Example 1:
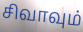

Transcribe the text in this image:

சிவாவும்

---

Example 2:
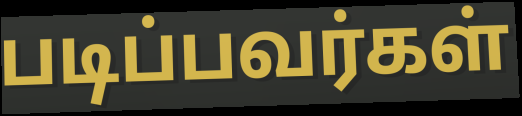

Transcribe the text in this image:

படிப்பவர்கள்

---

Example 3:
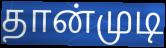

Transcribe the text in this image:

தான்முடி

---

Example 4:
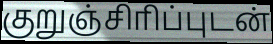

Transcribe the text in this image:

குறுஞ்சிரிப்புடன்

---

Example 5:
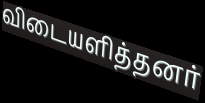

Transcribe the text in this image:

விடையளித்தனர்